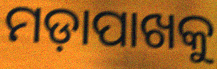
ମଡ଼ାପାଖକୁ